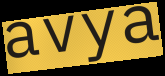
avya